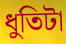
ধুতিটা